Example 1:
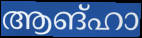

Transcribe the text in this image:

ആങ്ഹാ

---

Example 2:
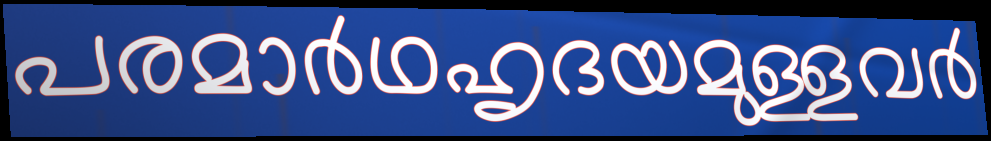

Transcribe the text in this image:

പരമാർഥഹൃദയമുള്ളവർ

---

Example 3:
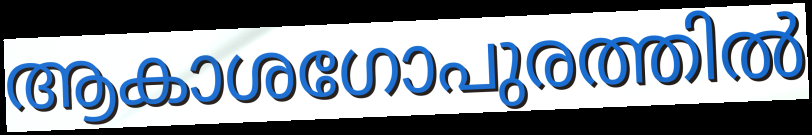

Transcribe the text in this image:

ആകാശഗോപുരത്തിൽ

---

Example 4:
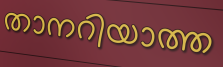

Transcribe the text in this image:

താനറിയാത്ത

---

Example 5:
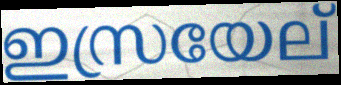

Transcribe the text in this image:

ഇസ്രയേല്